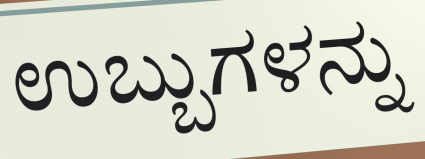
ಉಬ್ಬುಗಳನ್ನು